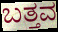
ಬತ್ತವ